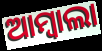
ଆମ୍ବାଲା